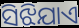
ସିଝିଯାଏ